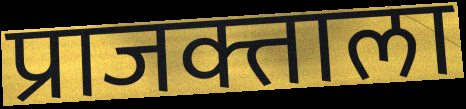
प्राजक्ताला